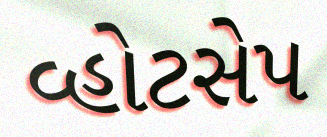
વ્હોટસેપ